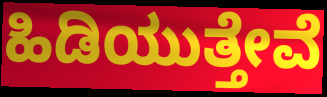
ಹಿಡಿಯುತ್ತೇವೆ